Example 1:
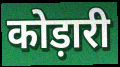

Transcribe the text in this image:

कोड़ारी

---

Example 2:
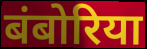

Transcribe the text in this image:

बंबोरिया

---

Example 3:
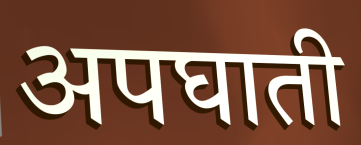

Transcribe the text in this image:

अपघाती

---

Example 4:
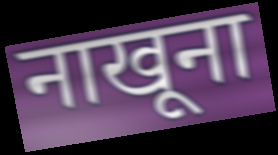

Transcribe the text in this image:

नाखूना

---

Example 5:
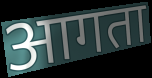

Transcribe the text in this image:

आगता